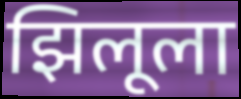
झिलूला